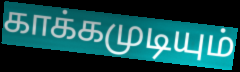
காக்கமுடியும்